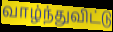
வாழ்ந்துவிட்டு